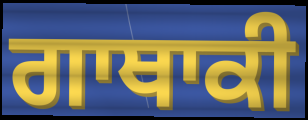
ਗਾਥਾਕੀ